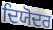
ਦਿਯੋਦਰ